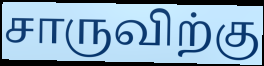
சாருவிற்கு